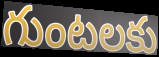
గుంటలకు